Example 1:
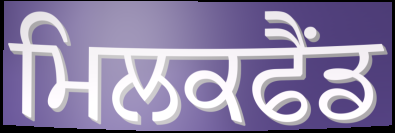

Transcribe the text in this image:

ਮਿਲਕਫੈਂਡ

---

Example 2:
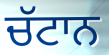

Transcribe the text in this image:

ਚੱਟਾਨ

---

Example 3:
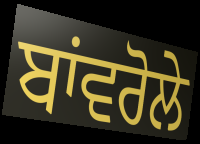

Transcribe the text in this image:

ਬਾਂਵਰੋਲੇ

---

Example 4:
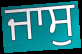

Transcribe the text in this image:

ਜਾਸੁ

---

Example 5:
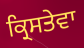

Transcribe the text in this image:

ਕ੍ਰਿਸਤੇਵਾ